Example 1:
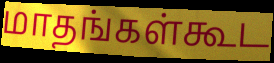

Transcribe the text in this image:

மாதங்கள்கூட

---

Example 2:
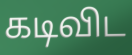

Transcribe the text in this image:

கடிவிட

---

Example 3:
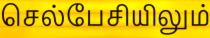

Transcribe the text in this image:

செல்பேசியிலும்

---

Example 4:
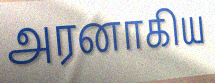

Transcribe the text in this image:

அரனாகிய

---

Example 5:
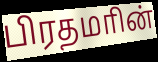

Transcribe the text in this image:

பிரதமரின்